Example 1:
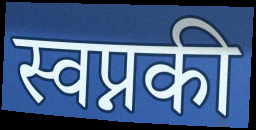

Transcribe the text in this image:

स्वप्नकी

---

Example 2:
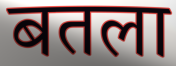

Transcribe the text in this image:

बतला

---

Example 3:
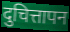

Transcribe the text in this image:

दुचित्तापन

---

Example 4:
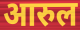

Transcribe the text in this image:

आरुल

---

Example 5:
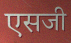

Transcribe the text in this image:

एसजी